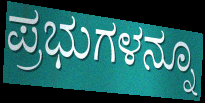
ಪ್ರಭುಗಳನ್ನೂ